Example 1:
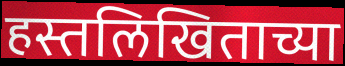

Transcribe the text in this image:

हस्तलिखिताच्या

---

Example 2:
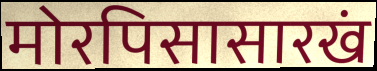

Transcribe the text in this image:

मोरपिसासारखं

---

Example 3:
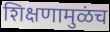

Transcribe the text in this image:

शिक्षणामुळंच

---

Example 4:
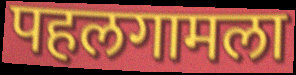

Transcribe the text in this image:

पहलगामला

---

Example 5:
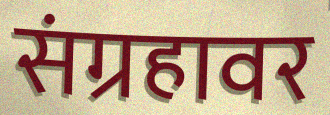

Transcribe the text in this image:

संग्रहावर